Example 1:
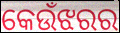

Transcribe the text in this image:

କେଉଁଝରର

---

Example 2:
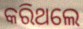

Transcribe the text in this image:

କରିଥଲେ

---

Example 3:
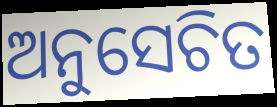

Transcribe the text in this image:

ଅନୁସେଚିତ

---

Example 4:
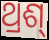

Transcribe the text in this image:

ଥ୍ରଶ୍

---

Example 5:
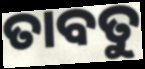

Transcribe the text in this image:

ତାବତୁ